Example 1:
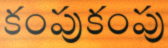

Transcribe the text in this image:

కంపుకంపు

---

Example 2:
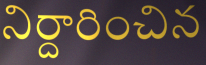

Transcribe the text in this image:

నిర్దారించిన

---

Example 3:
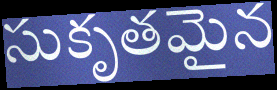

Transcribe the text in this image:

సుకృతమైన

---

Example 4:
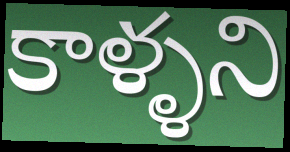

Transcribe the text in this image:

కాళ్ళని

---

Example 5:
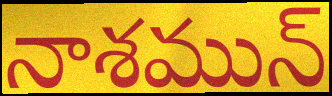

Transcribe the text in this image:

నాశమున్